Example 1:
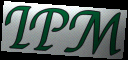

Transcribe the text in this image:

IPM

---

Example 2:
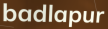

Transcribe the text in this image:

badlapur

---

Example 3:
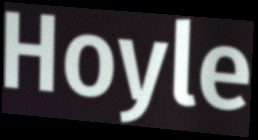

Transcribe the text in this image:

Hoyle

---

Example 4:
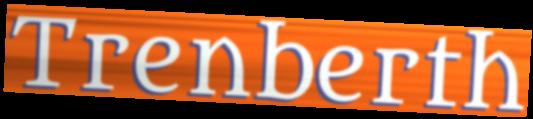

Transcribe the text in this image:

Trenberth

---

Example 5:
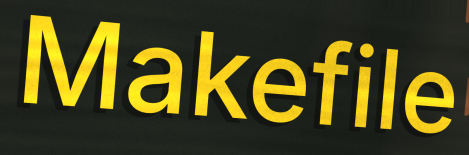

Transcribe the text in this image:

Makefile